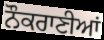
ਨੌਕਰਾਣੀਆਂ